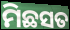
ମିଛସତ